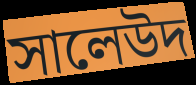
সালেউদ